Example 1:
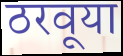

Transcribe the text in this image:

ठरवूया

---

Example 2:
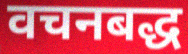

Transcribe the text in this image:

वचनबद्ध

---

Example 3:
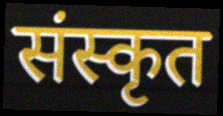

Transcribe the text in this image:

संस्कृत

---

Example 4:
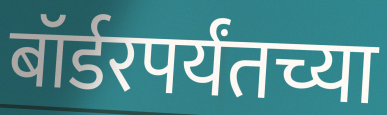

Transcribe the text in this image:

बॉर्डरपर्यंतच्या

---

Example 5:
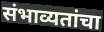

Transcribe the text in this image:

संभाव्यतांचा